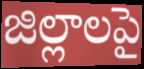
జిల్లాలపై